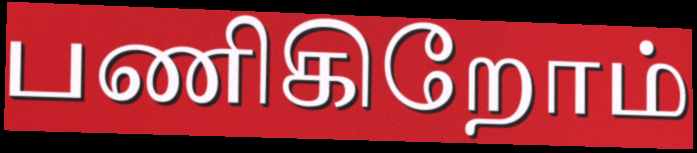
பணிகிறோம்